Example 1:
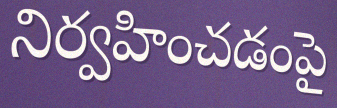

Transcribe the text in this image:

నిర్వహించడంపై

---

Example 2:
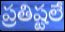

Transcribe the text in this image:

ప్రతిష్టలే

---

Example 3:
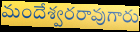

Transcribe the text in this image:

మందేశ్వరరావుగారు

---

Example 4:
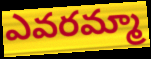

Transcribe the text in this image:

ఎవరమ్మా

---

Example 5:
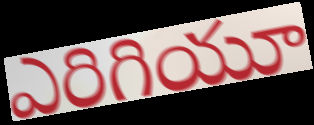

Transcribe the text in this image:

ఎరిగియూ